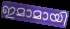
ഇമാമായി